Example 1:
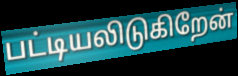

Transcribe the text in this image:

பட்டியலிடுகிறேன்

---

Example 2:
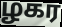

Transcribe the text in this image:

ழகர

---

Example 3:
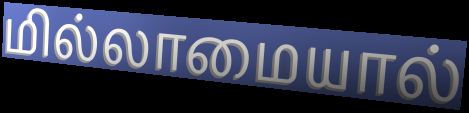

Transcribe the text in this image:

மில்லாமையால்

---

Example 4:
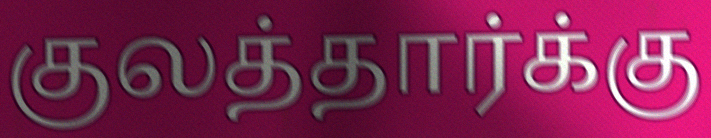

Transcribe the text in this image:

குலத்தார்க்கு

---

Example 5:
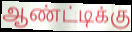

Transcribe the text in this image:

ஆண்ட்டிக்கு